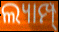
ଲ୍ୟାମ୍ପ୍